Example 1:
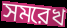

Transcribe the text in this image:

সমরেখ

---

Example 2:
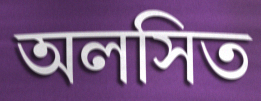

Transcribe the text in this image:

অলসিত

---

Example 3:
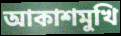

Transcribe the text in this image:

আকাশমুখি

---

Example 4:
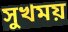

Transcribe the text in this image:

সুখময়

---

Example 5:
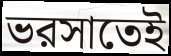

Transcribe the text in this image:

ভরসাতেই